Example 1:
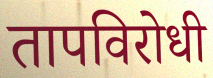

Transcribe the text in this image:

तापविरोधी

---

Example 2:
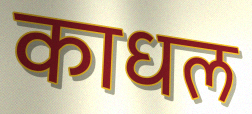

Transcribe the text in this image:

काधल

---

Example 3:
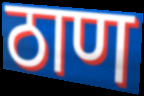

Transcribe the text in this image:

ठाण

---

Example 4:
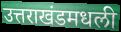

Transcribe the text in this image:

उत्तराखंडमधली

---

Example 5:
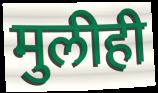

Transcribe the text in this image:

मुलीही